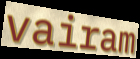
vairam